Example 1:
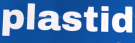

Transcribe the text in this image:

plastid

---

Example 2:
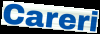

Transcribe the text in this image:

Careri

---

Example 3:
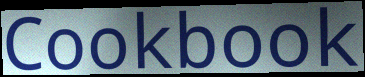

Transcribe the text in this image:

Cookbook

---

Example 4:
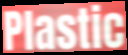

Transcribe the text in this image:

Plastic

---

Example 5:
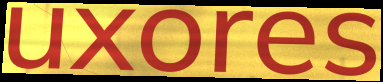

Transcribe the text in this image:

uxores